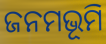
ଜନମଭୂମି